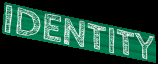
IDENTITY